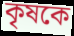
কৃষকে